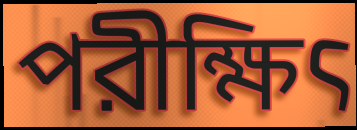
পরীক্ষিৎ